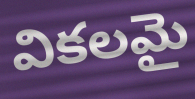
వికలమై